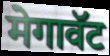
मेगावॅट